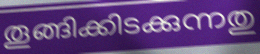
തൂങ്ങിക്കിടക്കുന്നതു